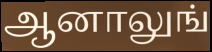
ஆனாலுங்